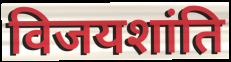
विजयशांति